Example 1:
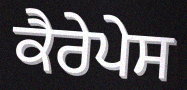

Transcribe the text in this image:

ਕੈਰੇਪੇਸ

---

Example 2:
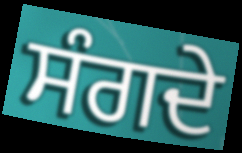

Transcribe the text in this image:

ਸੰਗਦੇ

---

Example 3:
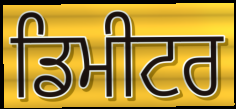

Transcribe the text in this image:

ਡਿਮੀਟਰ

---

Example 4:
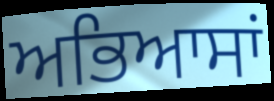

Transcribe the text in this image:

ਅਭਿਆਸਾਂ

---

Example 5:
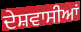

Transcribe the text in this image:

ਦੇਸ਼ਵਾਸੀਆਂ